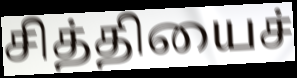
சித்தியைச்